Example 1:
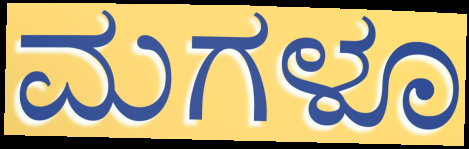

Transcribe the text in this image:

ಮಗಳೂ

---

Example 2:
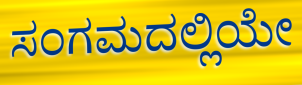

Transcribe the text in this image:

ಸಂಗಮದಲ್ಲಿಯೇ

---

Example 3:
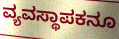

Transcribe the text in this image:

ವ್ಯವಸ್ಥಾಪಕನೂ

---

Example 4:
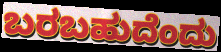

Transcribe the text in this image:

ಬರಬಹುದೆಂದು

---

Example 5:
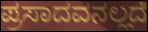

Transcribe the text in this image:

ಪ್ರಸಾದವನಲ್ಲದೆ